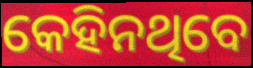
କେହିନଥିବେ